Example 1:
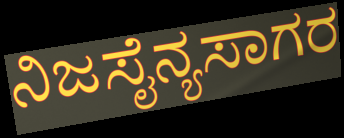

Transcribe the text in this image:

ನಿಜಸೈನ್ಯಸಾಗರ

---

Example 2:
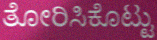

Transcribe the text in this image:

ತೋರಿಸಿಕೊಟ್ಟು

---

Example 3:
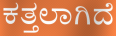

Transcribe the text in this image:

ಕತ್ತಲಾಗಿದೆ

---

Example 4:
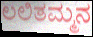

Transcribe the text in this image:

ಲಲಿತಮ್ಮನ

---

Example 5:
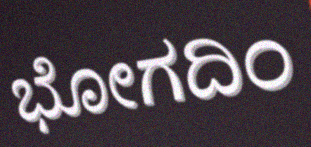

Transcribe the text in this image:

ಭೋಗದಿಂ